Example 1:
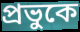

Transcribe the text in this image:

প্রভুকে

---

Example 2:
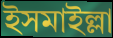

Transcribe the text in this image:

ইসমাইল্লা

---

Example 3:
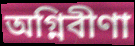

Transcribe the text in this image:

অগ্নিবীণা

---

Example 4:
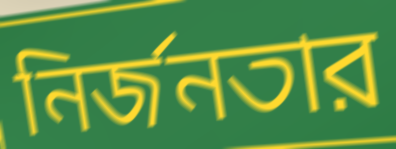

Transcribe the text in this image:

নির্জনতার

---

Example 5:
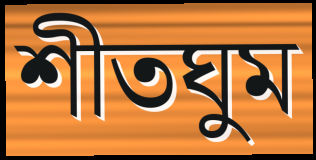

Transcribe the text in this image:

শীতঘুম